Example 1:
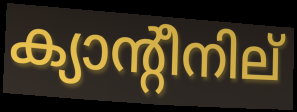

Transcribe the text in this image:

ക്യാന്റീനില്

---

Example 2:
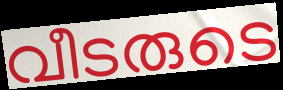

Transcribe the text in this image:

വീടരുടെ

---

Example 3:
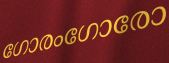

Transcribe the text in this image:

ഗോരംഗോരോ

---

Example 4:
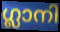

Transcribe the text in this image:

ഗ്ലാനി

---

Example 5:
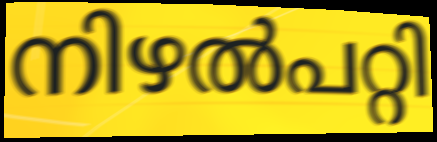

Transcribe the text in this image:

നിഴൽപറ്റി